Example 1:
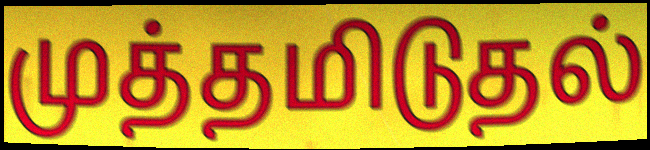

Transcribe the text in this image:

முத்தமிடுதல்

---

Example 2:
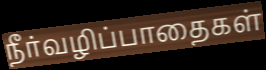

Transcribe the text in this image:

நீர்வழிப்பாதைகள்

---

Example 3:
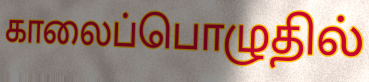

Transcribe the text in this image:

காலைப்பொழுதில்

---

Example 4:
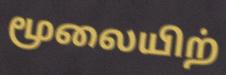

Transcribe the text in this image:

மூலையிற்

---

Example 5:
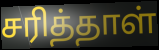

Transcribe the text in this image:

சரித்தாள்